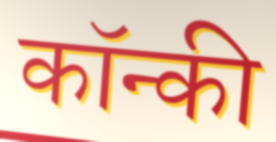
कॉन्की